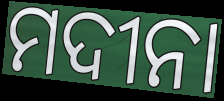
ମଦୀନା